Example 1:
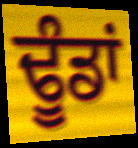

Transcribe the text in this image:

ਢੂੰਡਾਂ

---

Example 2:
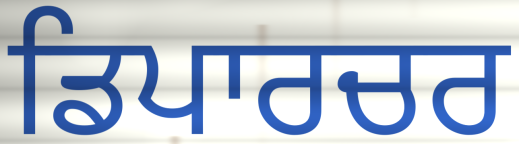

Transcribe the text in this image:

ਡਿਪਾਰਚਰ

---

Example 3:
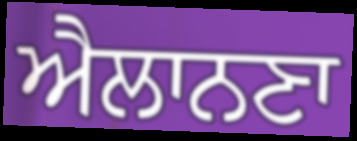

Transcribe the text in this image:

ਐਲਾਨਣਾ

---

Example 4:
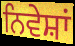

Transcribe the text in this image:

ਨਿਵੇਸ਼ਾਂ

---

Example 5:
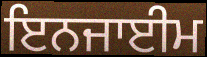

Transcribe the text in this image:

ਇਨਜਾਈਮ